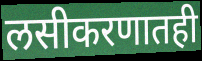
लसीकरणातही